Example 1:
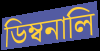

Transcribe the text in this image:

ডিম্বনালি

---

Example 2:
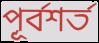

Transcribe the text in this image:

পূর্বশর্ত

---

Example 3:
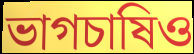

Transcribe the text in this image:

ভাগচাষিও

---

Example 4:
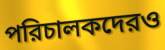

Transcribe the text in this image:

পরিচালকদেরও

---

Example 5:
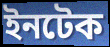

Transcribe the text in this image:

ইনটেক